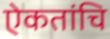
ऐकतांचि